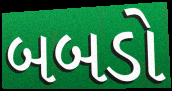
બબડો